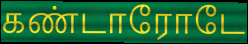
கண்டாரோடே